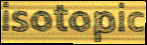
isotopic